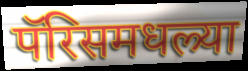
पॅरिसमधल्या